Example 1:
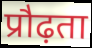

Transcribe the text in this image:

प्रौढ़ता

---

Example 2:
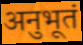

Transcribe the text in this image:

अनुभूतं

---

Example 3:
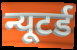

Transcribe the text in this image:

न्यूटर्ड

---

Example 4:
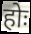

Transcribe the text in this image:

होः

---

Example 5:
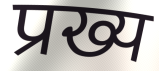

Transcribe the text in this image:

प्रख्य